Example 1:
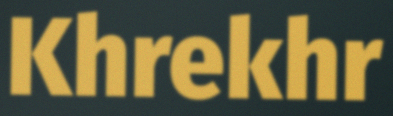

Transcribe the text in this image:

Khrekhr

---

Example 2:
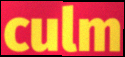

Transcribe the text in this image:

culm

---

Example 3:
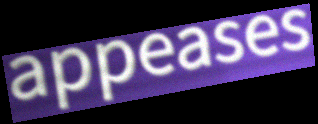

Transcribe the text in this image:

appeases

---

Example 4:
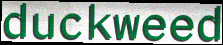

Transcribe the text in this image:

duckweed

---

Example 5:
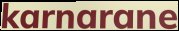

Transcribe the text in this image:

karnarane